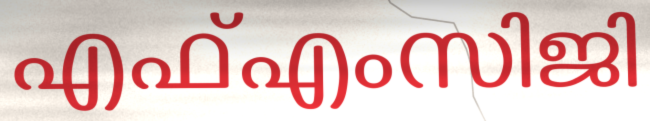
എഫ്എംസിജി